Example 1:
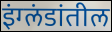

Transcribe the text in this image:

इंग्लंडांतील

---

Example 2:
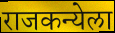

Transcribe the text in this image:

राजकन्येला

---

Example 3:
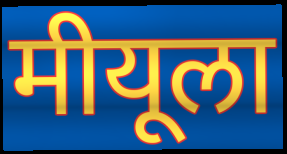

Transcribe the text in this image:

मीयूला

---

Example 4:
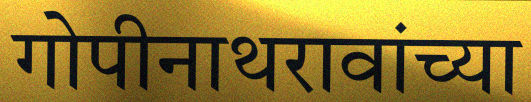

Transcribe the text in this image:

गोपीनाथरावांच्या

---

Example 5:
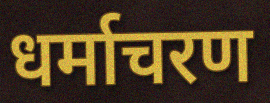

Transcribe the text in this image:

धर्माचरण